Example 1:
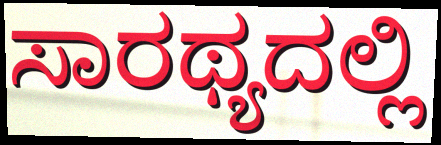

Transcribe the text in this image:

ಸಾರಥ್ಯದಲ್ಲಿ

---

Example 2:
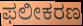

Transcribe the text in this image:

ಫಲೀಕರಣ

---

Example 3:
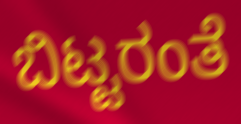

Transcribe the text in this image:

ಬಿಟ್ಟರಂತೆ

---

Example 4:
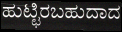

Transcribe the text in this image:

ಹುಟ್ಟಿರಬಹುದಾದ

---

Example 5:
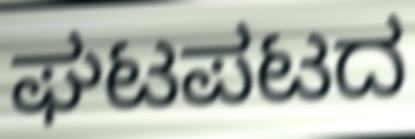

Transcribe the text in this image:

ಘಟಪಟದ